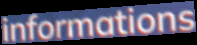
informations